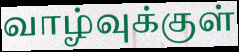
வாழ்வுக்குள்